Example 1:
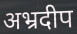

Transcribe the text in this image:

अभ्रदीप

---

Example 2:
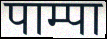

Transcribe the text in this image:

पाम्पा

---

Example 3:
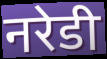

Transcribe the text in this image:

नरेडी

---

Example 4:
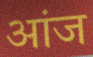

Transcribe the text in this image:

आंज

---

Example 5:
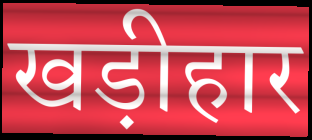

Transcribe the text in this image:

खड़ीहार